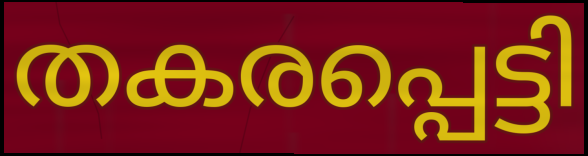
തകരപ്പെട്ടി